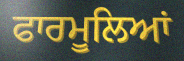
ਫਾਰਮੂਲਿਆਂ